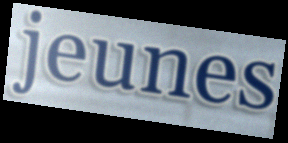
jeunes